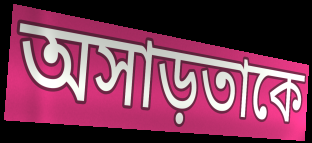
অসাড়তাকে